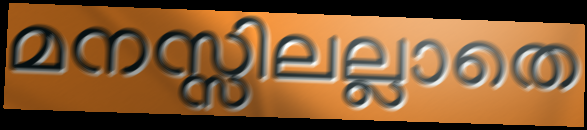
മനസ്സിലല്ലാതെ